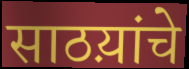
साठय़ांचे